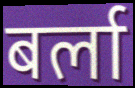
बर्ला